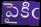
పైకిఁ